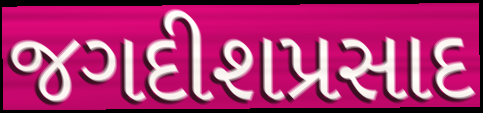
જગદીશપ્રસાદ